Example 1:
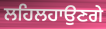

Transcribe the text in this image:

ਲਹਿਲਹਾਉਣਗੇ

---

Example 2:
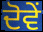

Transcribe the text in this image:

ਦੋਵੇੰ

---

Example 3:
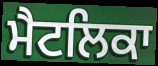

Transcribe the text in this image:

ਮੈਟਲਿਕਾ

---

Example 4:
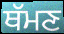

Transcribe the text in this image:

ਥੱਮਣ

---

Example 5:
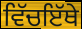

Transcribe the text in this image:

ਵਿੱਚਇੱਥੇ